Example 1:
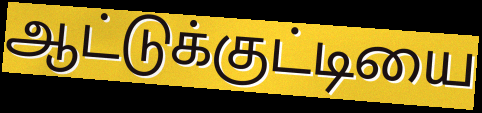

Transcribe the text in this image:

ஆட்டுக்குட்டியை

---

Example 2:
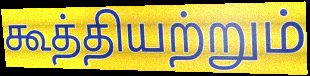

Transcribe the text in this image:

கூத்தியற்றும்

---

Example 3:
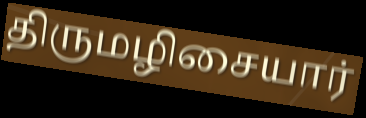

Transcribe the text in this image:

திருமழிசையார்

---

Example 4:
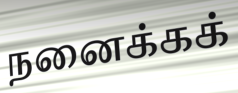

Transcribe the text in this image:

நனைக்கக்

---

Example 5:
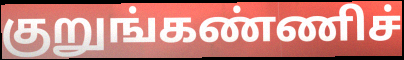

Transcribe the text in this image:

குறுங்கண்ணிச்